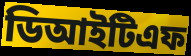
ডিআইটিএফ